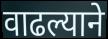
वाढल्याने